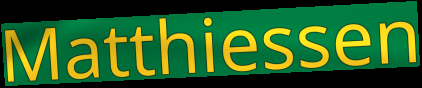
Matthiessen